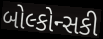
બોલ્કોન્સકી